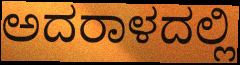
ಅದರಾಳದಲ್ಲಿ